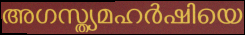
അഗസ്ത്യമഹർഷിയെ